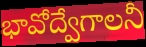
భావోద్వేగాలనీ